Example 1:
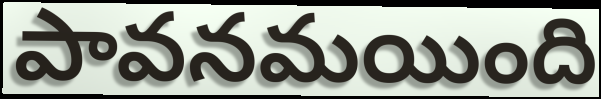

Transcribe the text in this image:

పావనమయింది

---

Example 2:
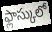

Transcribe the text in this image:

ఫ్లాస్కులో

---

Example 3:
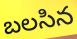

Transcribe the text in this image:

బలసిన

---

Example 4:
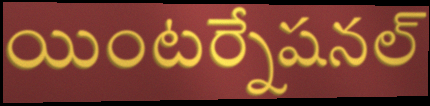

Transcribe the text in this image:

యింటర్నేషనల్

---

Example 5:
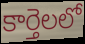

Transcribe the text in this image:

కార్తెలలో